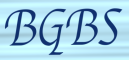
BGBS